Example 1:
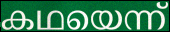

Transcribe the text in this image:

കഥയെന്ന്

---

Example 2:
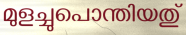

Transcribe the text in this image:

മുളച്ചുപൊന്തിയതു്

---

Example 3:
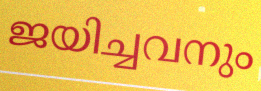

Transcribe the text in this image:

ജയിച്ചവനും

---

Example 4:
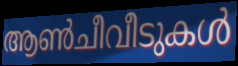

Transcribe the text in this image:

ആൺചീവീടുകൾ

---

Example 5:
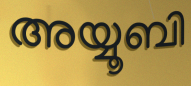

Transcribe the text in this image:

അയ്യൂബി